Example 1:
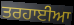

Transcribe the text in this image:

ਤਰਹਾਈਆ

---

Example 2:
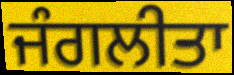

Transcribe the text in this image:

ਜੰਗਲੀਤਾ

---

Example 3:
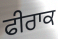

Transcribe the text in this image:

ਫੀਰਾਕ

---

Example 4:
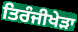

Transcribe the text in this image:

ਤਿਰੰਜੀਖੇੜਾ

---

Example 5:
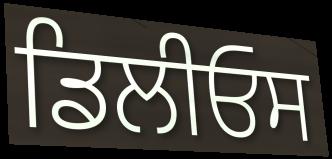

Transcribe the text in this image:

ਡਿਲੀਓਸ